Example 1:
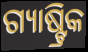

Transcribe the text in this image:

ଗ୍ୟାଷ୍ଟ୍ରିକ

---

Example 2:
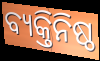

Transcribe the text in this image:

ବ୍ୟକ୍ତିନିଷ୍ଠ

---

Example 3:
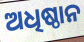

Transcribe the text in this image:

ଅଧିଷ୍ଠାନ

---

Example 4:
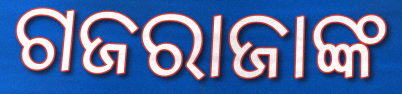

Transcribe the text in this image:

ଗଜରାଜାଙ୍କ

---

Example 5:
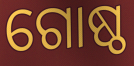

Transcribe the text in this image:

ଗୋଷ୍ଠ